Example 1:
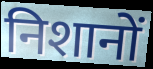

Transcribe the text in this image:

निशानों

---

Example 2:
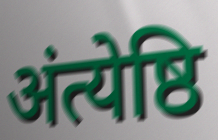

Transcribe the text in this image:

अंत्येष्ठि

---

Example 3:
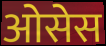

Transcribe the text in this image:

ओसेस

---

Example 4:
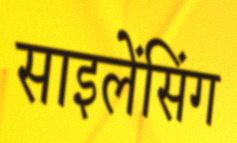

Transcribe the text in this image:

साइलेंसिंग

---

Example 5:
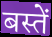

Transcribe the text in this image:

बस्तें